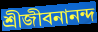
শ্রীজীবনানন্দ